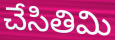
చేసితిమి